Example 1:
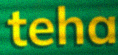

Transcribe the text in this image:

teha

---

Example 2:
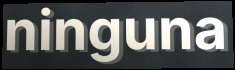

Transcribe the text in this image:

ninguna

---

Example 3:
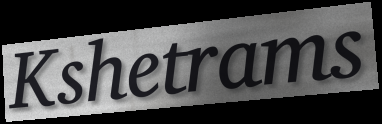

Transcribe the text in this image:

Kshetrams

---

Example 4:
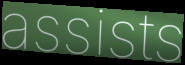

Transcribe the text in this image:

assists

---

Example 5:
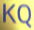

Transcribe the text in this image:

KQ